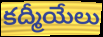
కద్మీయేలు